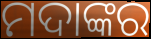
ମଦାଙ୍କର